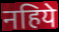
नहिये